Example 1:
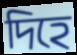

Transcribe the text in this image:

দিহে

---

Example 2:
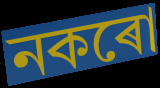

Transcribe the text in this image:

নকৰো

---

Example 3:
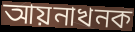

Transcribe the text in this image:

আয়নাখনক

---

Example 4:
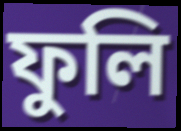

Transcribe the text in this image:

ফুলি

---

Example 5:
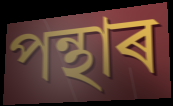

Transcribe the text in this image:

পন্থাৰ